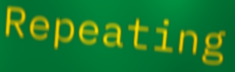
Repeating